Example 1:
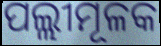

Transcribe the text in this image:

ପଲ୍ଲୀମୂଳକ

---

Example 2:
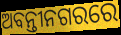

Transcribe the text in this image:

ଅବନ୍ତୀନଗରରେ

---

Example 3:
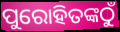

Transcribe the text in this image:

ପୁରୋହିତଙ୍କଠୁଁ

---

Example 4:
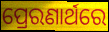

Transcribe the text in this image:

ପ୍ରେରଣାର୍ଥରେ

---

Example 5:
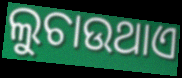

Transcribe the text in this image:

ଲୁଚାଉଥାଏ